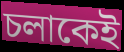
চলাকেই